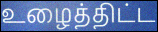
உழைத்திட்ட